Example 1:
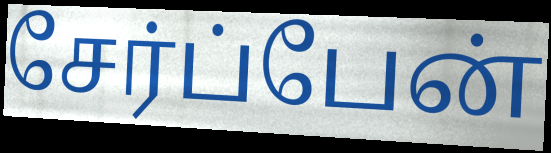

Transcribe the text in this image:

சேர்ப்பேன்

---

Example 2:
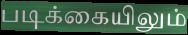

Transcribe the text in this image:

படிக்கையிலும்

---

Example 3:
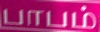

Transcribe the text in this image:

பாபம்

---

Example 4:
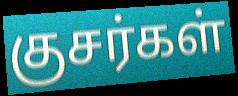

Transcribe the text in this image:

குசர்கள்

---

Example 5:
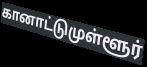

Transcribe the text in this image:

கானாட்டுமுள்ளூர்